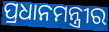
ପ୍ରଧାନମନ୍ତ୍ରୀର